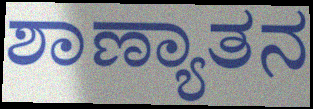
ಶಾಣ್ಯಾತನ